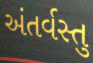
અંતર્વસ્તુ